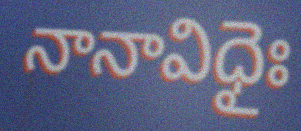
నానావిధైః